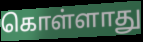
கொள்ளாது